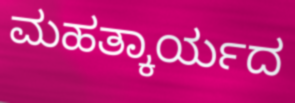
ಮಹತ್ಕಾರ್ಯದ